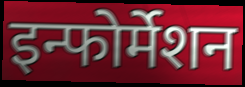
इन्फोर्मेशन